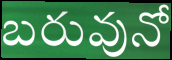
బరువునో